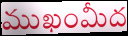
ముఖంమీద